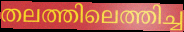
തലത്തിലെത്തിച്ച